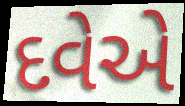
દવેએ